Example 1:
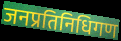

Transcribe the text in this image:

जनप्रतिनिधिगण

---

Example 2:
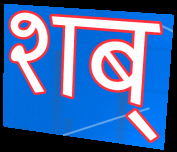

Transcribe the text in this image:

शब्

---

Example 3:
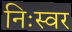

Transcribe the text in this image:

निःस्वर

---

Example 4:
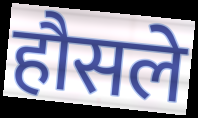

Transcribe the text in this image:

हौसले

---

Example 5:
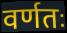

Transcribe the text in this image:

वर्णतः